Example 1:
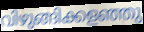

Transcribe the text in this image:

വിഴുങ്ങിക്കളഞ്ഞു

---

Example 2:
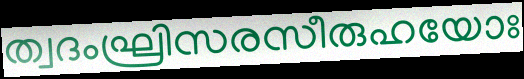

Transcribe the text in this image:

ത്വദംഘ്രിസരസീരുഹയോഃ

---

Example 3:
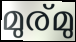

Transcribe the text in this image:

മുര്മു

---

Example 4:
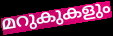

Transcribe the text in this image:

മറുകുകളും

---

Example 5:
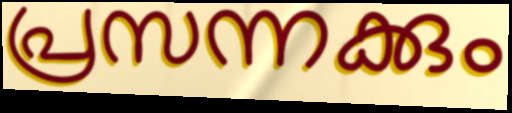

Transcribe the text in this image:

പ്രസന്നക്കും